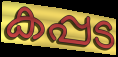
കപ്പട